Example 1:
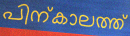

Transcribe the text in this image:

പിന്കാലത്ത്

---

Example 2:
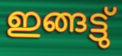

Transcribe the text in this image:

ഇങ്ങട്ടു്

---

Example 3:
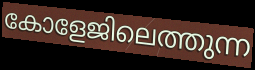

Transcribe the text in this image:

കോളേജിലെത്തുന്ന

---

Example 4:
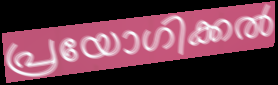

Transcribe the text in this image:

പ്രയോഗിക്കൽ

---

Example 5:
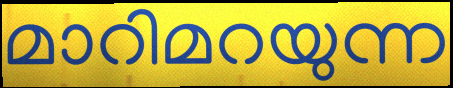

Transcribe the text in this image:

മാറിമറയുന്ന